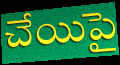
చేయిపై